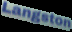
Langston